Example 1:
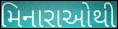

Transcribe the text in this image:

મિનારાઓથી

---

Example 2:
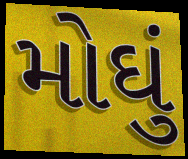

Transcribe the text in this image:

મોઘું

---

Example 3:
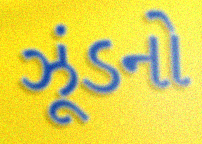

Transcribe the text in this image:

ઝૂંડનો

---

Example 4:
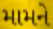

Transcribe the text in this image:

મામને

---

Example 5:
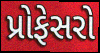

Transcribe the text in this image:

પ્રોફેસરો